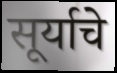
सूर्याचे